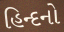
હિન્દનો